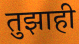
तुझाही